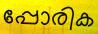
പ്പോരിക